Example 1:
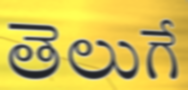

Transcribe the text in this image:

తెలుగే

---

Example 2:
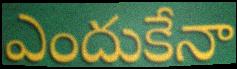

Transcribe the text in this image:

ఎందుకేనా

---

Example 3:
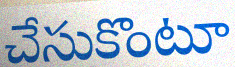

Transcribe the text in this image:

చేసుకొంటూ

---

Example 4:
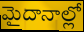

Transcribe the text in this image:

మైదానాల్లో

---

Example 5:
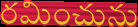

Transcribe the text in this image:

రమించును